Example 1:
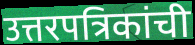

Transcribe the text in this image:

उत्तरपत्रिकांची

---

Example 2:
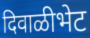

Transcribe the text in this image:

दिवाळीभेट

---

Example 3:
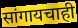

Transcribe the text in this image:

सांगायचाही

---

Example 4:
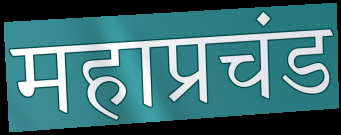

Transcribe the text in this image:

महाप्रचंड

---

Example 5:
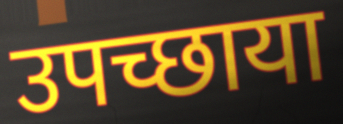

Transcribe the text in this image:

उपच्छाया